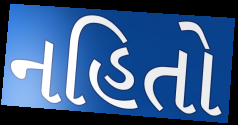
નહિતો